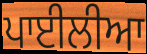
ਪਾਈਲੀਆ